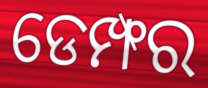
ଡେମ୍ଫର